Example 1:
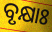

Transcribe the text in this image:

ବୃକ୍ଷାଃ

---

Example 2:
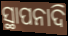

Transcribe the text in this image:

ସ୍ଥାପନାଦି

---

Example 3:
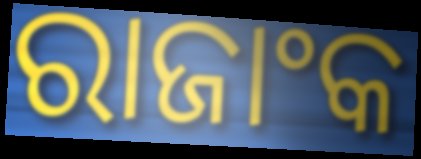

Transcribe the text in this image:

ରାଜାଂକ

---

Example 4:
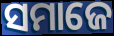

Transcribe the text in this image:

ସମାଜେ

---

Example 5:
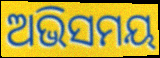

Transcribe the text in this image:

ଅଭିସମୟ